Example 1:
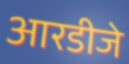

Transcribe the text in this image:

आरडीजे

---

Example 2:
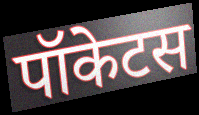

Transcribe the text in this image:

पॉकेटस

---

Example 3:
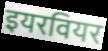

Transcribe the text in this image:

इयरवियर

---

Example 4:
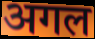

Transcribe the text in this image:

अगल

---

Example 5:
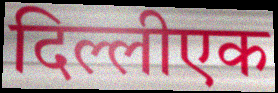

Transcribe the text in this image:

दिल्लीएक